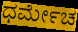
ಧರ್ಮೇಚ